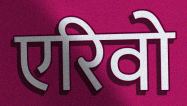
एरिवो